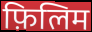
फ़िलिम